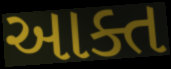
આક્ત